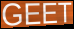
GEET